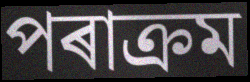
পৰাক্ৰম